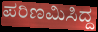
ಪರಿಣಮಿಸಿದ್ದ